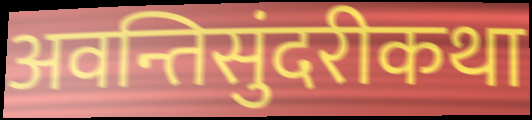
अवन्तिसुंदरीकथा